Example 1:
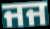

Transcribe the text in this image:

ਜਜ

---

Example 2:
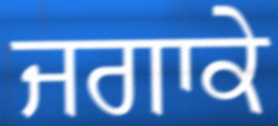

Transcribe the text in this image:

ਜਗਾਕੇ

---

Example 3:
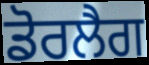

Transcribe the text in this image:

ਡੋਰਲੈਗ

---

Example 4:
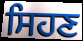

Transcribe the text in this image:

ਸਿਹਣ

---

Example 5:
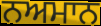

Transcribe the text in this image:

ਨਅਮਾਨ